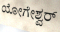
ಯೋಗೇಶ್ವರ್